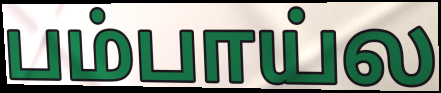
பம்பாய்ல